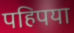
पहिपया